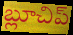
బ్లూచిప్